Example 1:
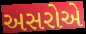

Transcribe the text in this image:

અસરોએ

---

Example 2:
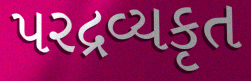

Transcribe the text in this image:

પરદ્રવ્યકૃત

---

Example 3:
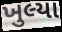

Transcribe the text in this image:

ખુલ્યા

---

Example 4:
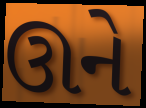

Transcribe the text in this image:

ઊને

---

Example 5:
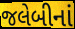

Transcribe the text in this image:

જલેબીનાં